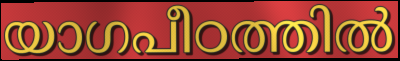
യാഗപീഠത്തിൽ